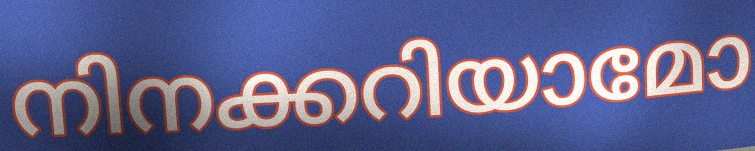
നിനക്കറിയാമോ